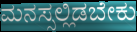
ಮನಸ್ಸಲ್ಲಿಡಬೇಕು